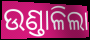
ଉଣ୍ଡାଳିଲା